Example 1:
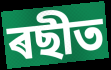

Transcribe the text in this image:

ৰছীত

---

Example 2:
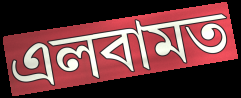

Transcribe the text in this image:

এলবামত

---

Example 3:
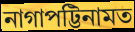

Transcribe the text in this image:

নাগাপট্টিনামত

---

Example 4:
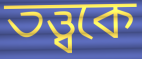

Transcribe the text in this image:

তত্ত্বকে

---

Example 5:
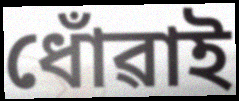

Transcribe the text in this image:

ধোঁৱাই